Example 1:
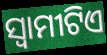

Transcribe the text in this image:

ସ୍ୱାମୀଟିଏ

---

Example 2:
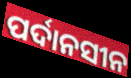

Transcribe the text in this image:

ପର୍ଦାନସୀନ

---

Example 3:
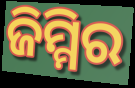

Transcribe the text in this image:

ଜିମ୍ମିର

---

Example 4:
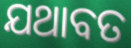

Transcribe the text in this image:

ଯଥାବତ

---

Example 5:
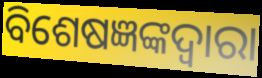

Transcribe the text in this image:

ବିଶେଷଜ୍ଞଙ୍କଦ୍ୱାରା